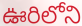
ఊరిలోని